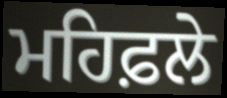
ਮਹਿਫ਼ਲੇ